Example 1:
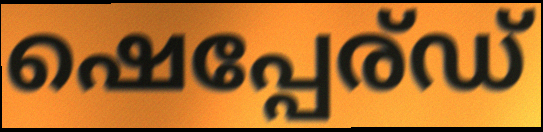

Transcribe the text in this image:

ഷെപ്പേര്ഡ്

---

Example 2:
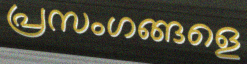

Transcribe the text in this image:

പ്രസംഗങ്ങളെ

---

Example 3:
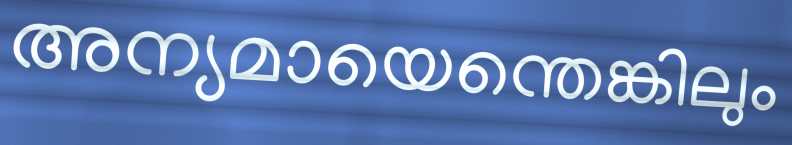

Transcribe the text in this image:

അന്യമായെന്തെങ്കിലും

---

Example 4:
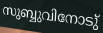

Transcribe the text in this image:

സുബ്ബുവിനോടു്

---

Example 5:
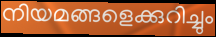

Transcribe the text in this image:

നിയമങ്ങളെക്കുറിച്ചും